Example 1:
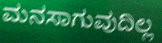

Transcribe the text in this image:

ಮನಸಾಗುವುದಿಲ್ಲ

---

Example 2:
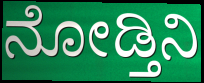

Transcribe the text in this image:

ನೋಡ್ತಿನಿ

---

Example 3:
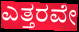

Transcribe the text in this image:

ಎತ್ತರವೇ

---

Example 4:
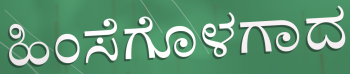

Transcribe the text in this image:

ಹಿಂಸೆಗೊಳಗಾದ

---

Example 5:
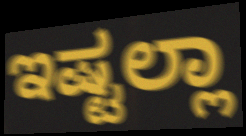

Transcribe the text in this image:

ಇಷ್ಟಲ್ಲಾ